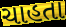
ચાહતા